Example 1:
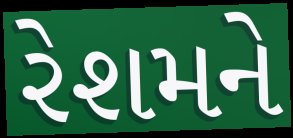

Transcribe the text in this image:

રેશમને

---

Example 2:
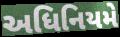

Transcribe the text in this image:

અધિનિયમે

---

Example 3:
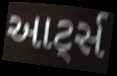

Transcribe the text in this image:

આટ્‌ર્સ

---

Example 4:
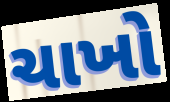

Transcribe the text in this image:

ચાખો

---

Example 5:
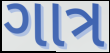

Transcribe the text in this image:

ગાત્ર